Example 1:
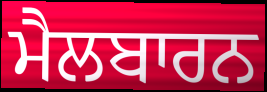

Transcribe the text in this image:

ਮੈਲਬਾਰਨ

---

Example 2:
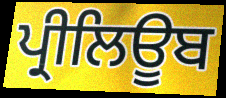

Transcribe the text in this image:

ਪ੍ਰੀਲਿਊਬ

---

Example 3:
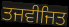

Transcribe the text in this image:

ਤਜਵੀਜਿਤ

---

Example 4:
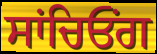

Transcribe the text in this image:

ਸਾਂਚਿਓਂਗ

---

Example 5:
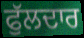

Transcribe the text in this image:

ਫੁੱਲਦਾਰ